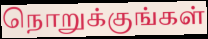
நொறுக்குங்கள்